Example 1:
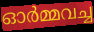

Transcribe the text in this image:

ഓർമ്മവച്ച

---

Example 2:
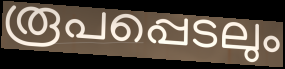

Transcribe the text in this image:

രൂപപ്പെടലും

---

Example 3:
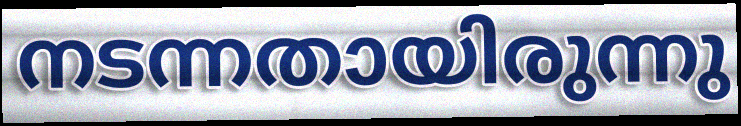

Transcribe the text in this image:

നടന്നതായിരുന്നു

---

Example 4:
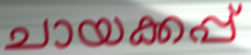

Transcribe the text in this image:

ചായക്കപ്പ്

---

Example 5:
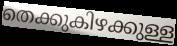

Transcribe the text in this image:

തെക്കുകിഴക്കുള്ള